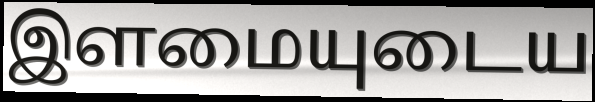
இளமையுடைய